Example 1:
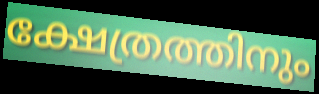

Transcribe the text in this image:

ക്ഷേത്രത്തിനും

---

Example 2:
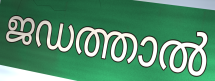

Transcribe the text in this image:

ജഡത്താൽ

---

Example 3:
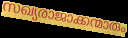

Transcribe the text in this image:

സഖ്യരാജാക്കന്മാരും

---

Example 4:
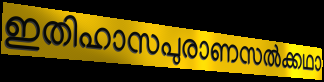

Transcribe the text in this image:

ഇതിഹാസപുരാണസൽക്കഥാ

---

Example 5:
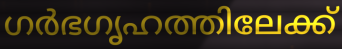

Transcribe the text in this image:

ഗർഭഗൃഹത്തിലേക്ക്